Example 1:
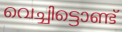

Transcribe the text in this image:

വെച്ചിട്ടൊണ്ട്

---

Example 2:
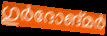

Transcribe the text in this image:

ഗുർദോങ്മർ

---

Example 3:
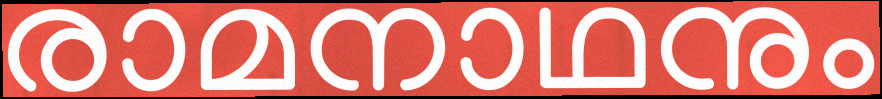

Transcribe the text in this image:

രാമനാഥനും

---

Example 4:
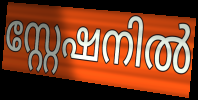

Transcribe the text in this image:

സ്റ്റേഷനിൽ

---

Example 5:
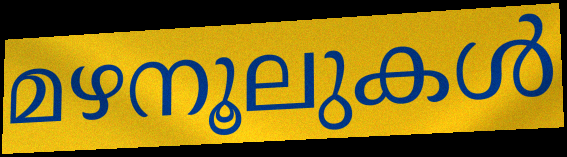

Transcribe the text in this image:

മഴനൂലുകൾ